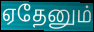
ஏதேனும்